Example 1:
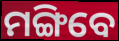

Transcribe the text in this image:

ମଙ୍ଗିବେ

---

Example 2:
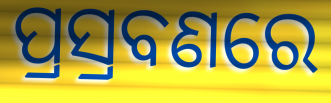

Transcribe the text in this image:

ପ୍ରସ୍ରବଣରେ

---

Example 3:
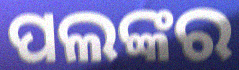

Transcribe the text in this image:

ପଲଙ୍କର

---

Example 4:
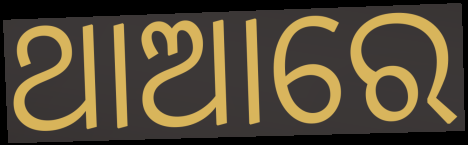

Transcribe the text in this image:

ଥାଆରେ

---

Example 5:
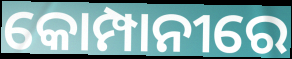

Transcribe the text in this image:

କୋମ୍ପାନୀରେ